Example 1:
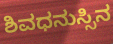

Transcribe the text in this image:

ಶಿವಧನುಸ್ಸಿನ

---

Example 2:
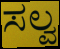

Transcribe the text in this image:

ಸಲ್ವ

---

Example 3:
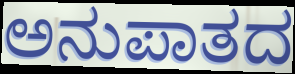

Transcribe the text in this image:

ಅನುಪಾತದ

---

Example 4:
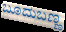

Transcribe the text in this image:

ಬೂದುಬಣ್ಣ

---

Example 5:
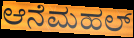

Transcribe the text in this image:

ಆನೆಮಹಲ್